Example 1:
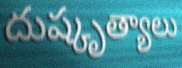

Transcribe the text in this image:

దుష్కృత్యాలు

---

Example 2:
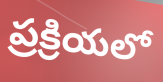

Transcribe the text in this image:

ప్రక్రియలో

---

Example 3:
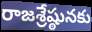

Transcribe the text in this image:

రాజశ్రేష్ఠునకు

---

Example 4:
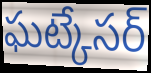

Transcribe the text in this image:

ఘట్కేసర్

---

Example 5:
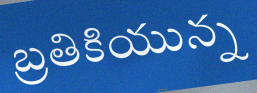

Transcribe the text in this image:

బ్రతికియున్న